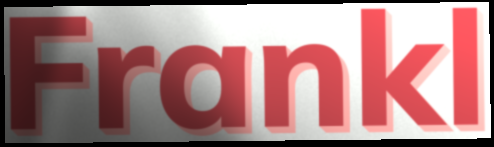
Frankl